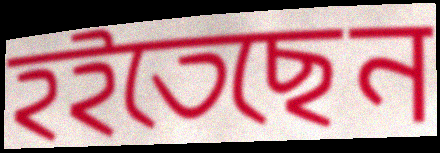
হইতেছেন